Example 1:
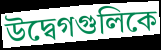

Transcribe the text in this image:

উদ্বেগগুলিকে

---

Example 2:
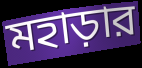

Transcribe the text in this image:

মহাড়ার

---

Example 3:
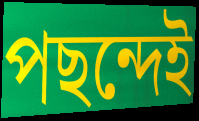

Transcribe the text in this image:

পছন্দেই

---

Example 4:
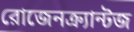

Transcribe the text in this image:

রোজেনক্র্যান্টজ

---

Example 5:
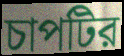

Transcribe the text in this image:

চাপটির